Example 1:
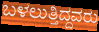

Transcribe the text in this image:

ಬಳಲುತ್ತಿದ್ದವರು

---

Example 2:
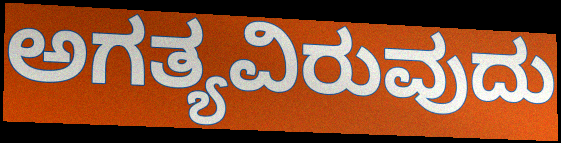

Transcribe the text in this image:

ಅಗತ್ಯವಿರುವುದು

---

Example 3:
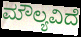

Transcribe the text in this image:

ಮೌಲ್ಯವಿದೆ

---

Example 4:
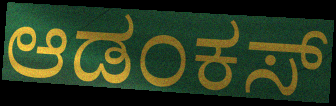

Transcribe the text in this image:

ಆಡಂಕಸ್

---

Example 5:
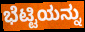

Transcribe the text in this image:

ಭೆಟ್ಟಿಯನ್ನು